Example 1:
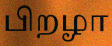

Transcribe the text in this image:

பிறழா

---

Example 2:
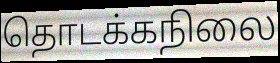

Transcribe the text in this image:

தொடக்கநிலை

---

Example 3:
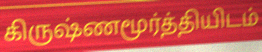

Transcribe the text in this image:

கிருஷ்ணமூர்த்தியிடம்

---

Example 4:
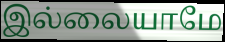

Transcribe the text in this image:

இல்லையாமே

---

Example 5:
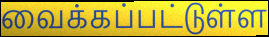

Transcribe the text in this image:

வைக்கப்பட்டுள்ள